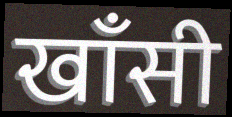
खाँसी